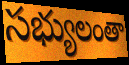
సభ్యులంతా